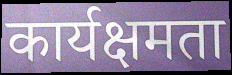
कार्यक्षमता